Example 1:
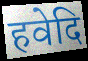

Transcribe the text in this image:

हवेदि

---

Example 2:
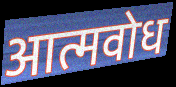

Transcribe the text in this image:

आत्मवोध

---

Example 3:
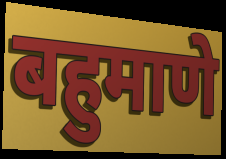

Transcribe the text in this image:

बहुमाणे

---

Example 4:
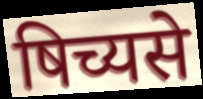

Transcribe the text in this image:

षिच्यसे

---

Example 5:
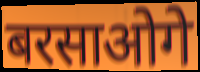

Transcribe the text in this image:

बरसाओगे